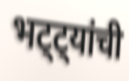
भट्ट्यांची